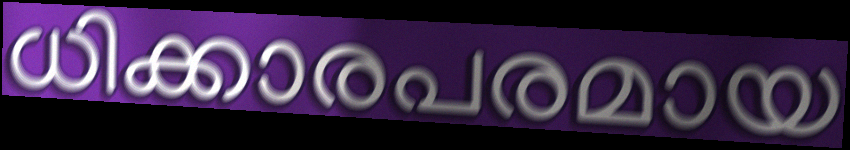
ധിക്കാരപരമായ